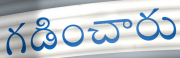
గడించారు